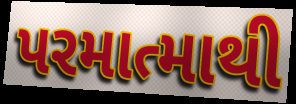
પરમાત્માથી